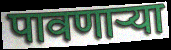
पावणाऱ्या